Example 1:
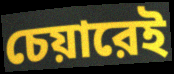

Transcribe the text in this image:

চেয়ারেই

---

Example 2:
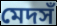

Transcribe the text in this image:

মেদসঁ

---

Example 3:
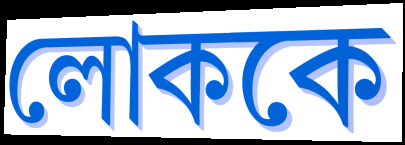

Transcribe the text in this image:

লোককে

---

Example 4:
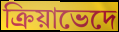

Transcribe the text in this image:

ক্রিয়াভেদে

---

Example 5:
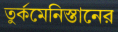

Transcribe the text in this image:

তুর্কমেনিস্তানের